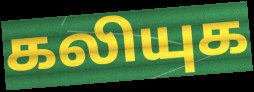
கலியுக